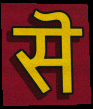
सॆ